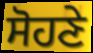
ਸੋਹਣੇ